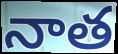
నాత